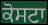
ਕੋਸਟਾ